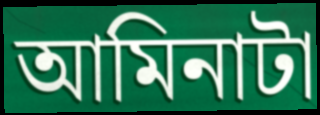
আমিনাটা